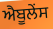
ਐਬੂਲੇਂਸ